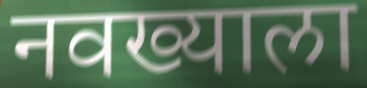
नवख्याला